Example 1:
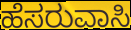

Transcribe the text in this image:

ಹೆಸರುವಾಸಿ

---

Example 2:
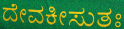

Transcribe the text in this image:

ದೇವಕೀಸುತಃ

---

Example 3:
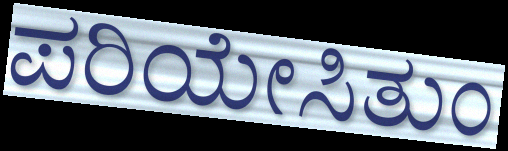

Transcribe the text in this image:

ಪರಿಯೇಸಿತುಂ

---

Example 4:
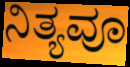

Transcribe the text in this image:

ನಿತ್ಯವೂ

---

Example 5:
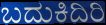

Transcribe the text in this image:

ಬದುಕಿದಿರಿ